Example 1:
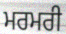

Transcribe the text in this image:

ਮਰਮਰੀ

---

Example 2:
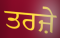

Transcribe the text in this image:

ਤਰਜ਼ੇ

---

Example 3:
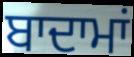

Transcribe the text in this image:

ਬਾਦਾਮਾਂ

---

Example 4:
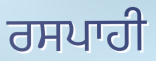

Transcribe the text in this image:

ਰਸਪਾਹੀ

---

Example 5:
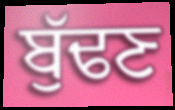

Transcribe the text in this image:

ਬੁੱਢਣ